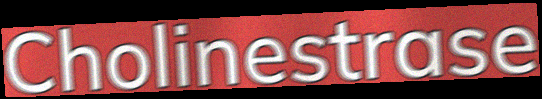
Cholinestrase